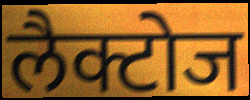
लैक्टोज